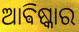
ଆଵିଷ୍କାର